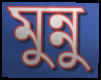
মুন্নু